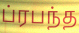
ப்ரபந்த